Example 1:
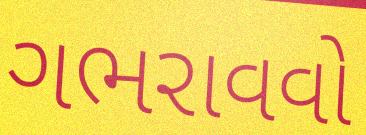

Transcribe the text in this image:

ગભરાવવો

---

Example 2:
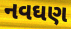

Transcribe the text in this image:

નવઘણ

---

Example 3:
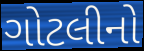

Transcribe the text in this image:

ગોટલીનો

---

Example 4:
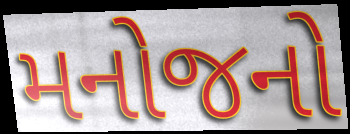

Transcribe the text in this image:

મનોજનો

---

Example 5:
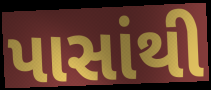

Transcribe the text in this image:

પાસાંથી